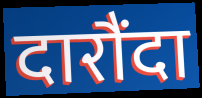
दारौंदा